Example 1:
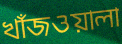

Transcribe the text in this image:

খাঁজওয়ালা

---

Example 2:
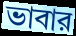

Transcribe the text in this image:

ভাবার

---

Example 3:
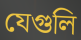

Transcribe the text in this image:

যেগুলি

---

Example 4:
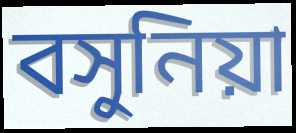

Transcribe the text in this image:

বসুনিয়া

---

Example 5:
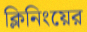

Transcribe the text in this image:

ক্লিনিংয়ের